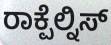
ರಾಕ್ಪೆಲ್ನಿಸ್